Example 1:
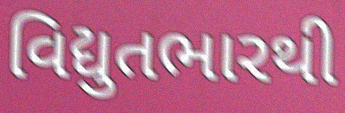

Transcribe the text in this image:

વિદ્યુતભારથી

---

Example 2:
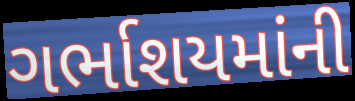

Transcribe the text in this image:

ગર્ભાશયમાંની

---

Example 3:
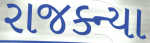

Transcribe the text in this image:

રાજક્ન્યા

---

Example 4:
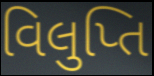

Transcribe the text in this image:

વિલુપ્તિ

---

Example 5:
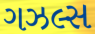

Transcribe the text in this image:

ગઝલ્સ